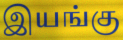
இயங்கு